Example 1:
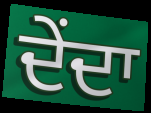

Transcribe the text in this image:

ਦੇਂਦਾ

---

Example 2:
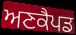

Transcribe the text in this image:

ਅਣਕੈਪਡ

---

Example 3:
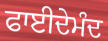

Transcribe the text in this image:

ਫਾਈਦੇਮੰਦ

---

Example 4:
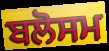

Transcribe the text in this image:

ਬਲੋਸਮ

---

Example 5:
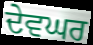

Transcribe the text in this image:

ਦੇਵਘਰ